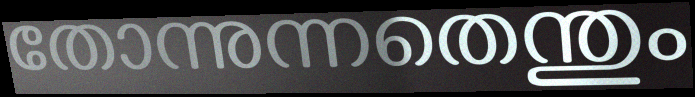
തോന്നുന്നതെന്തും